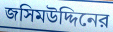
জসিমউদ্দিনের